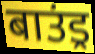
बाउंड्र